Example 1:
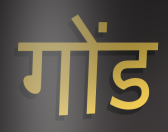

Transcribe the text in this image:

गोंड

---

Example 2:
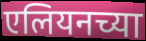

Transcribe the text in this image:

एलियनच्या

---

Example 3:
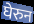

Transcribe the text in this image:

घेरुन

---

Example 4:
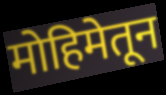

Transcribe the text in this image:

मोहिमेतून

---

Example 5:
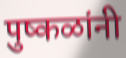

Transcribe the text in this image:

पुष्कळांनी